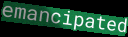
emancipated